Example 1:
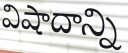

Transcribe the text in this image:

విషాదాన్ని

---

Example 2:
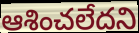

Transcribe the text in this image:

ఆశించలేదని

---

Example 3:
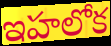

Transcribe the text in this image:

ఇహలోక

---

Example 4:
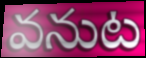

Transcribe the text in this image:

వనుట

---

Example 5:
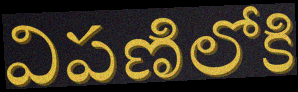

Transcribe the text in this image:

విపణిలోకి